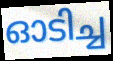
ഓടിച്ച